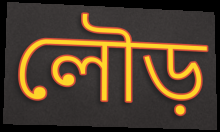
লৌড়